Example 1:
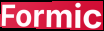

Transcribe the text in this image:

Formic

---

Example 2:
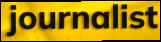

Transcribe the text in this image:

journalist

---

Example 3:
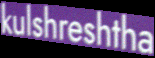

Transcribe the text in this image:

kulshreshtha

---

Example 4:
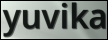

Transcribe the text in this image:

yuvika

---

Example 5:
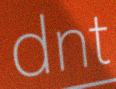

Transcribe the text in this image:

dnt